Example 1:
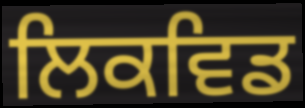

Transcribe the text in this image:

ਲਿਕਵਿਡ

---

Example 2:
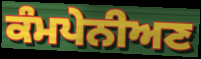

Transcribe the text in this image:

ਕੰਮਪੇਨੀਅਣ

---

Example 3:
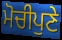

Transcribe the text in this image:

ਮੋਚੀਪੁਣੇ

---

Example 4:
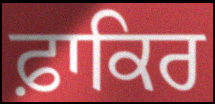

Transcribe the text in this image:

ਫ਼ਾਕਿਰ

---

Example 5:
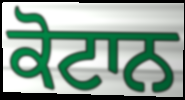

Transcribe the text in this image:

ਕੋਟਾਨ